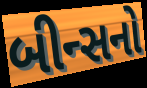
બીન્સનો